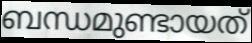
ബന്ധമുണ്ടായത്